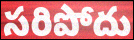
సరిపోదు